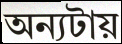
অন্যটায়